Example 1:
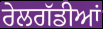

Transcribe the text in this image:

ਰੇਲਗੱਡੀਆਂ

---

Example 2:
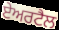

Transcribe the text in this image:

ਏਅਰਟੈਲ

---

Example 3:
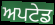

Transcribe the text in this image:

ਅਪਟੇਡ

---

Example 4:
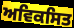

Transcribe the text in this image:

ਅਵਿਕਸਿਤ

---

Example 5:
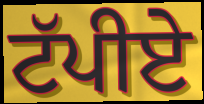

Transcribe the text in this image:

ਟੱਪੀਏ